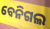
ବେନିଗଲ